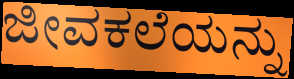
ಜೀವಕಲೆಯನ್ನು